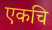
एकचि